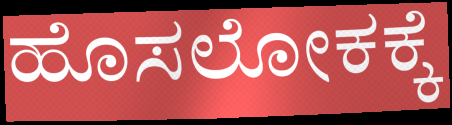
ಹೊಸಲೋಕಕ್ಕೆ